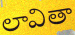
లావితా